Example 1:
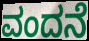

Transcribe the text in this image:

ವಂದನೆ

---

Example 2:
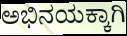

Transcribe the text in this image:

ಅಭಿನಯಕ್ಕಾಗಿ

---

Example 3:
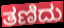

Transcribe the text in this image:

ತಣಿದು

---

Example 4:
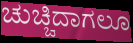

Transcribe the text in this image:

ಚುಚ್ಚಿದಾಗಲೂ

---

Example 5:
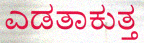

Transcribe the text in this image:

ಎಡತಾಕುತ್ತ